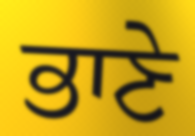
ਭਾਣੇ